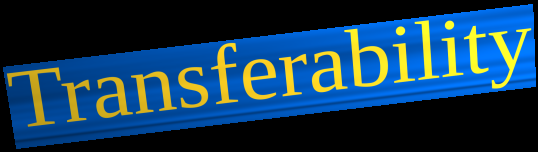
Transferability